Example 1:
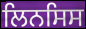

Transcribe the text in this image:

ਲਿਨਸਿਸ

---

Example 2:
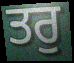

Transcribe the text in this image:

ਤਰੁ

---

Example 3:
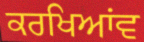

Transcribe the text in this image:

ਕਰਖਿਆਂਵ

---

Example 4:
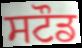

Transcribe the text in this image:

ਸਟੌਡ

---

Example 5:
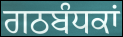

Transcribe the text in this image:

ਗਠਬੰਧਕਾਂ